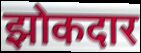
झोकदार